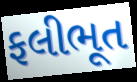
ફલીભૂત